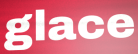
glace